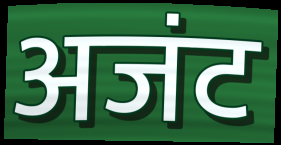
अजंट